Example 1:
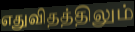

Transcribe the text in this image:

எதுவிதத்திலும்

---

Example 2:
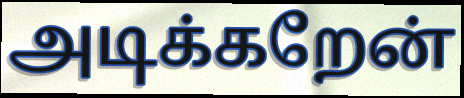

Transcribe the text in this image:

அடிக்கறேன்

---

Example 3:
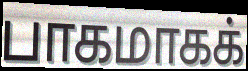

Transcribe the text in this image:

பாகமாகக்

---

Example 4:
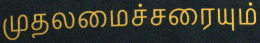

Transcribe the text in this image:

முதலமைச்சரையும்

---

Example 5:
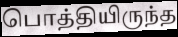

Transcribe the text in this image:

பொத்தியிருந்த